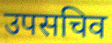
उपसचिव